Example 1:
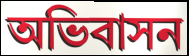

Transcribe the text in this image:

অভিবাসন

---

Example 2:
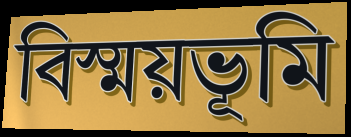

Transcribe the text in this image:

বিস্ময়ভূমি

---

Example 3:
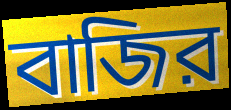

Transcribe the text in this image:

বাজির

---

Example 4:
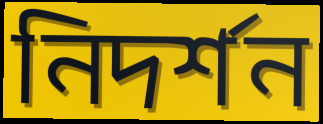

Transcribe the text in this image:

নিদর্শন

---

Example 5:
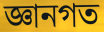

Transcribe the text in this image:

জ্ঞানগত